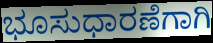
ಭೂಸುಧಾರಣೆಗಾಗಿ